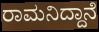
ರಾಮನಿದ್ದಾನೆ